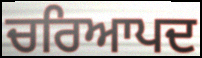
ਚਰਿਆਪਦ